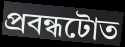
প্ৰবন্ধটোত